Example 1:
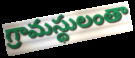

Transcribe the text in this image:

గ్రామస్థులంతా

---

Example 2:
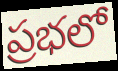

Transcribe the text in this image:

ప్రభలో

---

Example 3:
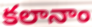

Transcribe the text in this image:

కలానాం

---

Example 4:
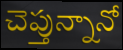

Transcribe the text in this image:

చెప్తున్నానో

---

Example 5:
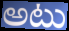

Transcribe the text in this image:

అటు